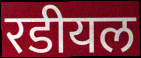
रडीयल